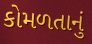
કોમળતાનું